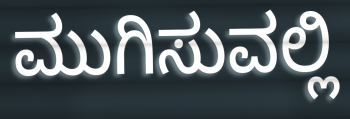
ಮುಗಿಸುವಲ್ಲಿ